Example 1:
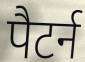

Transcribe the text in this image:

पैटर्न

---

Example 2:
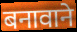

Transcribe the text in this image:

बनावाने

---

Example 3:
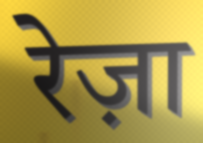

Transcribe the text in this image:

रेज़ा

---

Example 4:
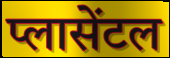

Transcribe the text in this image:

प्लासेंटल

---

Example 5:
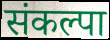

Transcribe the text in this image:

संकल्पा